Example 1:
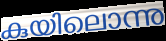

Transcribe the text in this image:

കുയിലൊന്നു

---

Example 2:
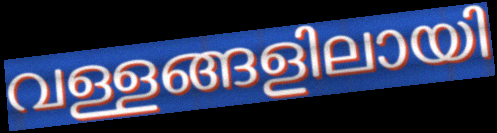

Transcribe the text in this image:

വള്ളങ്ങളിലായി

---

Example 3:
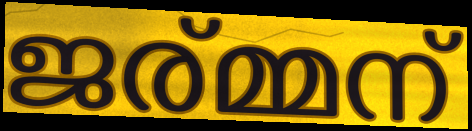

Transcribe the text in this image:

ജര്മ്മന്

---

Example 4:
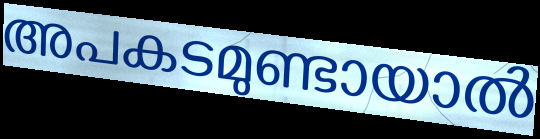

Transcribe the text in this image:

അപകടമുണ്ടായാൽ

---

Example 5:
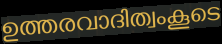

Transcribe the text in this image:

ഉത്തരവാദിത്വംകൂടെ